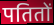
पतितों